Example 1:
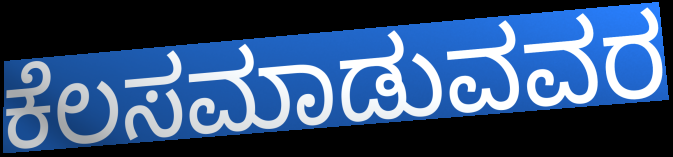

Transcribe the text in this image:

ಕೆಲಸಮಾಡುವವರ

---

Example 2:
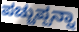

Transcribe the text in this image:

ಪಚ್ಚುಪ್ಪನ್ನಾ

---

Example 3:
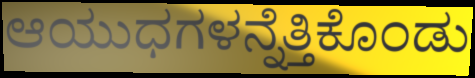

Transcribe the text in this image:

ಆಯುಧಗಳನ್ನೆತ್ತಿಕೊಂಡು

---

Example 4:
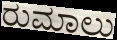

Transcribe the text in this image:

ರುಮಾಲು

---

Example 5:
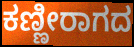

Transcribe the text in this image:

ಕಣ್ಣೀರಾಗದ